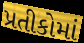
પ્રતીકોમાં